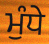
ਮੁੰਧੇ